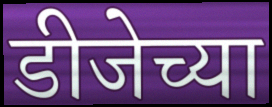
डीजेच्या